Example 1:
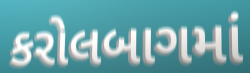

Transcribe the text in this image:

કરોલબાગમાં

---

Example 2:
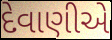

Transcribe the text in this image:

દેવાણીએ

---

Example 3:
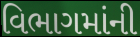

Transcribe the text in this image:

વિભાગમાંની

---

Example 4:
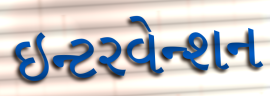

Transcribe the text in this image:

ઇન્ટરવેન્શન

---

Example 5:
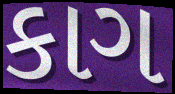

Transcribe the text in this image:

કાગ